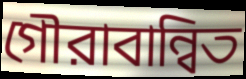
গৌরাবান্বিত